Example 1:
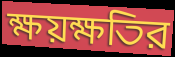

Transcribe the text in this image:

ক্ষয়ক্ষতির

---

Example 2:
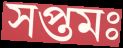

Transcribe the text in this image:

সপ্তমঃ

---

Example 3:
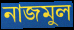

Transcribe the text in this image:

নাজমুল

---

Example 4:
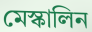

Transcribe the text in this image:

মেস্কালিন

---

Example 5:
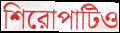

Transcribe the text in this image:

শিরোপাটিও